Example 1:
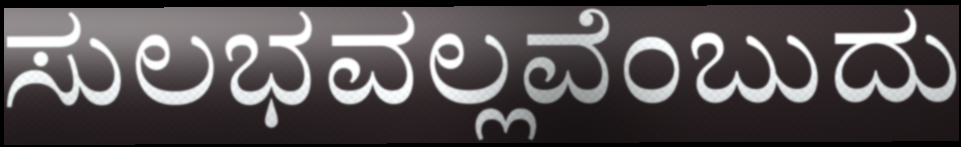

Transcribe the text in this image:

ಸುಲಭವಲ್ಲವೆಂಬುದು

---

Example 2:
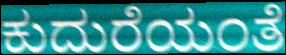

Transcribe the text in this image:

ಕುದುರೆಯಂತೆ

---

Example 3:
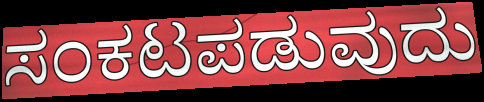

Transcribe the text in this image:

ಸಂಕಟಪಡುವುದು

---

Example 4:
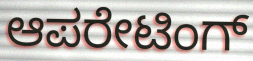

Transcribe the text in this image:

ಆಪರೇಟಿಂಗ್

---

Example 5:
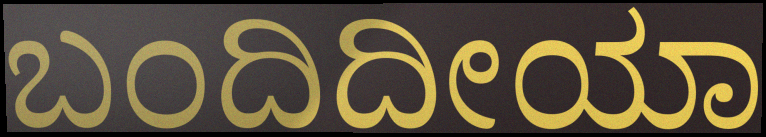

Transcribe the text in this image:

ಬಂದಿದೀಯಾ